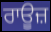
ਰਾਊਜ਼